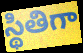
స్థితిగా